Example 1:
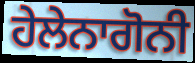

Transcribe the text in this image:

ਹੇਲੇਨਾਗੋਨੀ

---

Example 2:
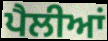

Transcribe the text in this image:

ਪੈਲੀਆਂ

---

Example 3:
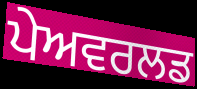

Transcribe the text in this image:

ਪੇਅਵਰਲਡ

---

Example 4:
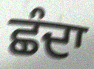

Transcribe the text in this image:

ਛੰਦਾ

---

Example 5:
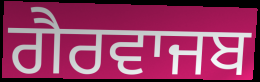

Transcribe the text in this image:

ਗੈਰਵਾਜਬ